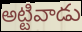
అట్టివాడు